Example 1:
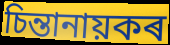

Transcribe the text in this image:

চিন্তানায়কৰ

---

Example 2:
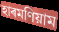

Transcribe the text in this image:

হাৰমণিয়াম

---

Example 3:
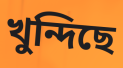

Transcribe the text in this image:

খুন্দিছে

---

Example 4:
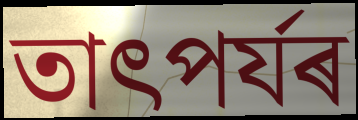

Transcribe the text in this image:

তাৎপৰ্যৰ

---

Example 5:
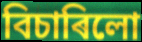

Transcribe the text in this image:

বিচাৰিলো